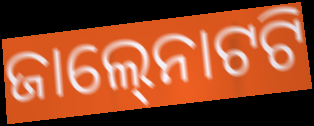
ଜାଲ୍‍ନୋଟଟି